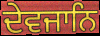
ਦੇਵਜਾਨਿ